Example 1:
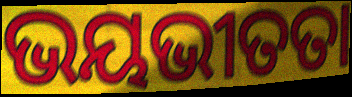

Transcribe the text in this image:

ଭୟଭୀତତା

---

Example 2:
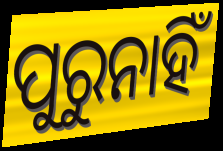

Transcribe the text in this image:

ପୁରୁନାହିଁ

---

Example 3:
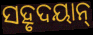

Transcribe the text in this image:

ସହୃଦୟାନ୍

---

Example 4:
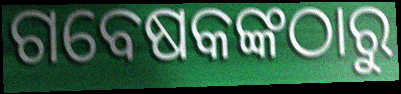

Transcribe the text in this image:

ଗବେଷକଙ୍କଠାରୁ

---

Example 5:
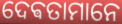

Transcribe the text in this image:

ଦେଵତାମାନେ